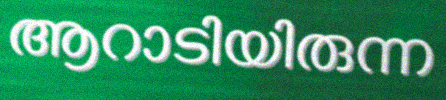
ആറാടിയിരുന്ന